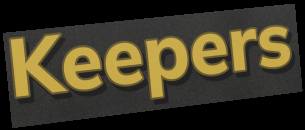
Keepers